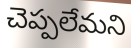
చెప్పలేమని